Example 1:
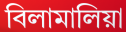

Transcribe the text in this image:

বিলামালিয়া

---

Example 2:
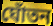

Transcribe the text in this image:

ঘোঁতন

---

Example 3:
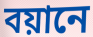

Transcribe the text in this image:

বয়ানে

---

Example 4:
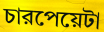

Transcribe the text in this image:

চারপেয়েটা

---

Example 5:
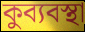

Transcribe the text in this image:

কুব্যবস্থা